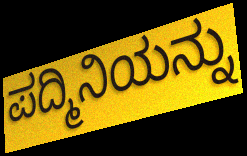
ಪದ್ಮಿನಿಯನ್ನು